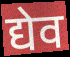
द्येव